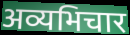
अव्यभिचार